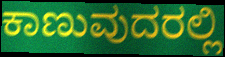
ಕಾಣುವುದರಲ್ಲಿ